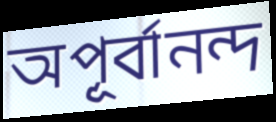
অপূর্বানন্দ